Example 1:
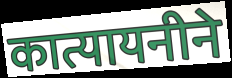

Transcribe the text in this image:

कात्यायनीने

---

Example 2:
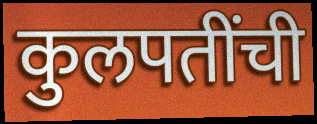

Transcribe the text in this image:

कुलपतींची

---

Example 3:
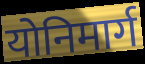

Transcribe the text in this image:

योनिमार्ग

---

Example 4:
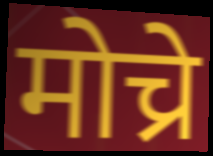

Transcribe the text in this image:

मोच्रे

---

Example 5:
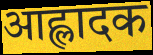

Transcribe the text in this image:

आह्लादक